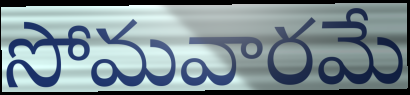
సోమవారమే